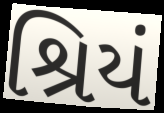
શ્રિયં